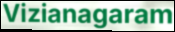
Vizianagaram